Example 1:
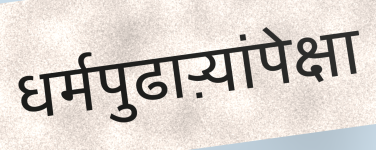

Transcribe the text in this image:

धर्मपुढाऱ्‍यांपेक्षा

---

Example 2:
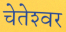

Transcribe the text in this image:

चेतेश्वर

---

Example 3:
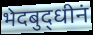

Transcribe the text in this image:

भेदबुद्धीनं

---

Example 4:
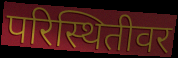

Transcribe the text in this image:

परिस्थितीवर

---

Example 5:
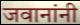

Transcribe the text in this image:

जवानांनी